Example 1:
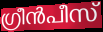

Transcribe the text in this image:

ഗ്രീൻപീസ്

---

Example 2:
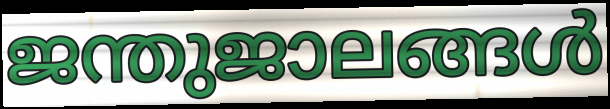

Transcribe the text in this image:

ജന്തുജാലങ്ങൾ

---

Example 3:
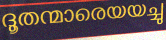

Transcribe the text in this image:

ദൂതന്മാരെയയച്ചു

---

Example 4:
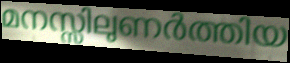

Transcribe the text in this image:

മനസ്സിലുണർത്തിയ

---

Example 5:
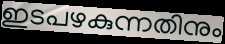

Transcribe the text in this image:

ഇടപഴകുന്നതിനും